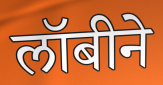
लॉबीने